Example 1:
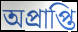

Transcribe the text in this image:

অপ্রাপ্তি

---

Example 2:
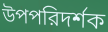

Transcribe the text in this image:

উপপরিদর্শক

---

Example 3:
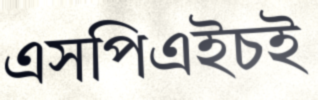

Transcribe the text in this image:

এসপিএইচই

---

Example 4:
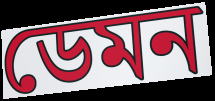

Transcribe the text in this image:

ডেমন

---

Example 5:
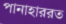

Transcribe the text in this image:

পানাহাররত